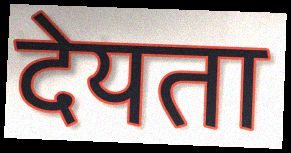
देयता